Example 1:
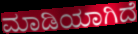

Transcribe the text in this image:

ಮಾಡಿಯಾಗಿದೆ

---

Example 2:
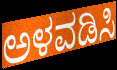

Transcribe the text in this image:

ಅಳವಡಿಸಿ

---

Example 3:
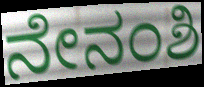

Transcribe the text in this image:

ನೇನಂಶಿ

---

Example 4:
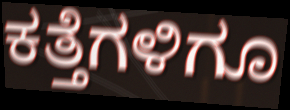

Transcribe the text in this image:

ಕತ್ತೆಗಳಿಗೂ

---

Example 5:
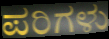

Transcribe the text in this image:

ಪರಿಗಳು